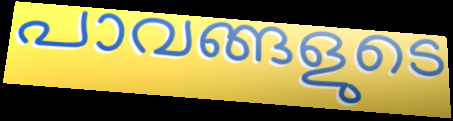
പാവങ്ങളുടെ